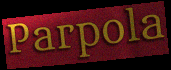
Parpola